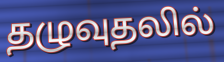
தழுவுதலில்